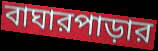
বাঘারপাড়ার